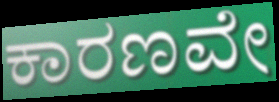
ಕಾರಣವೇ